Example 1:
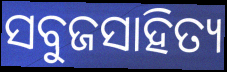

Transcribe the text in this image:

ସବୁଜସାହିତ୍ୟ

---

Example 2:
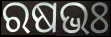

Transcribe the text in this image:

ରଷଭଃ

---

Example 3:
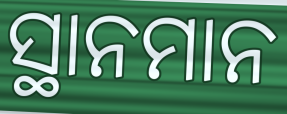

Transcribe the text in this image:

ସ୍ଥାନମାନ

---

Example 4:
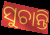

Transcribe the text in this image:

ସୁଚାନ୍ତି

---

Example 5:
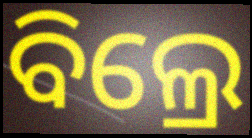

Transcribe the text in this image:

ବିଲ୍ରେ